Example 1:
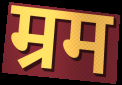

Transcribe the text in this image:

म्रम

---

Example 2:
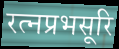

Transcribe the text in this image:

रत्नप्रभसूरि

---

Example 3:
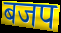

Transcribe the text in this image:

बजप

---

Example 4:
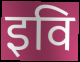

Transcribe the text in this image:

इवि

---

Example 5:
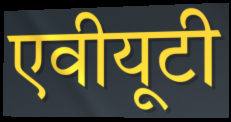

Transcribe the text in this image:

एवीयूटी